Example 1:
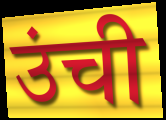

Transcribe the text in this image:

उंची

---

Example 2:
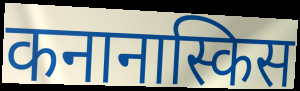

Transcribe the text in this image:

कनानास्किस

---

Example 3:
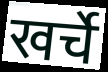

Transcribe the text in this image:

खर्चे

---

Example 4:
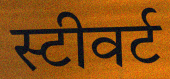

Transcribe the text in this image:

स्टीवर्ट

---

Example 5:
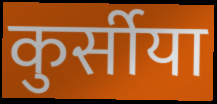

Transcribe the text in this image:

कुर्सीया